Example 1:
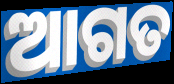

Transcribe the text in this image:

ଆଗତ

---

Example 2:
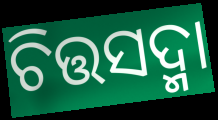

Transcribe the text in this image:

ଚିତ୍ତସଦ୍ମା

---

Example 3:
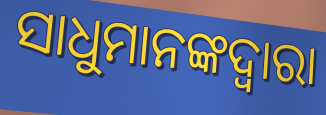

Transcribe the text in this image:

ସାଧୁମାନଙ୍କଦ୍ଵାରା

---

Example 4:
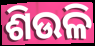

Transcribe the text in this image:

ଶିଉଳି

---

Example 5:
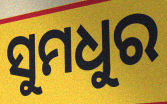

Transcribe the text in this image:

ସୁମଧୁର